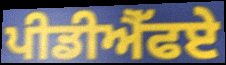
ਪੀਡੀਐੱਫਏ